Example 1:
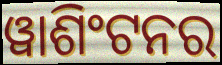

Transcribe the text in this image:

ୱାଶିଂଟନର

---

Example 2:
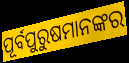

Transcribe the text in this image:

ପୂର୍ବପୁରୁଷମାନଙ୍କର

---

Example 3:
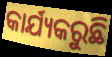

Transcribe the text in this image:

କାର୍ଯ୍ୟକରୁଛି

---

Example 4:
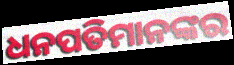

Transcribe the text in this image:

ଧନପତିମାନଙ୍କର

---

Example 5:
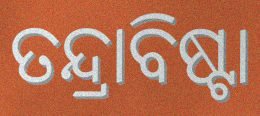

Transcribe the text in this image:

ତନ୍ଦ୍ରାବିଷ୍ଟା